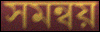
সমন্বয়